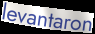
levantaron